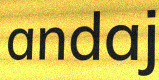
andaj